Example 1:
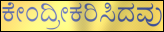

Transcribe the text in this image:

ಕೇಂದ್ರೀಕರಿಸಿದವು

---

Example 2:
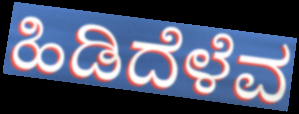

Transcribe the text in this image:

ಹಿಡಿದೆಳೆವ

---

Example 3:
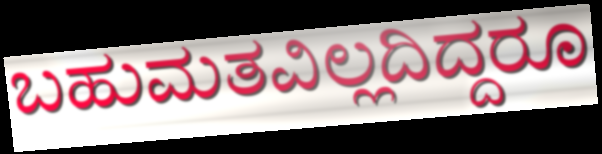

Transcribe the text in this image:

ಬಹುಮತವಿಲ್ಲದಿದ್ದರೂ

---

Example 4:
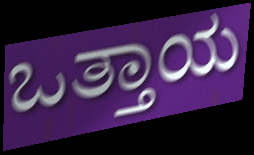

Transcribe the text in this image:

ಒತ್ತಾಯ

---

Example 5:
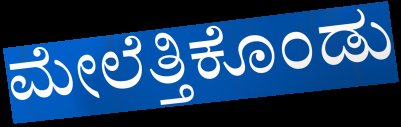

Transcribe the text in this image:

ಮೇಲೆತ್ತಿಕೊಂಡು